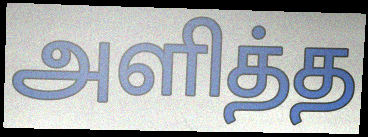
அளித்த